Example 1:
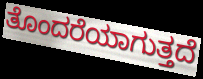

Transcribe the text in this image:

ತೊಂದರೆಯಾಗುತ್ತದೆ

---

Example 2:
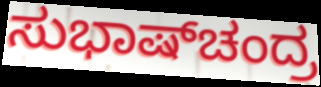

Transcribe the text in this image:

ಸುಭಾಷ್‌ಚಂದ್ರ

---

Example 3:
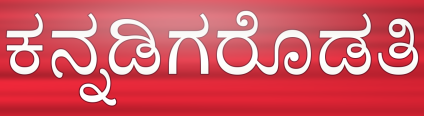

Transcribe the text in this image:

ಕನ್ನಡಿಗರೊಡತಿ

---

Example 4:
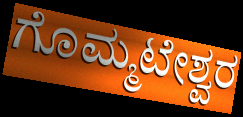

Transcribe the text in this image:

ಗೊಮ್ಮಟೇಶ್ವರ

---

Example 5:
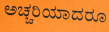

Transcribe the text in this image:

ಅಚ್ಚರಿಯಾದರೂ